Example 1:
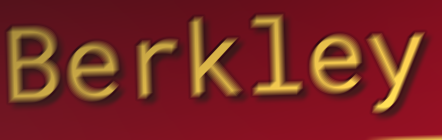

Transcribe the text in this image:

Berkley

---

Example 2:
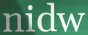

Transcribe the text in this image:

nidw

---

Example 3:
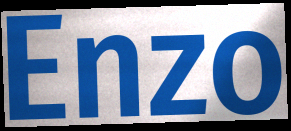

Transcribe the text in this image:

Enzo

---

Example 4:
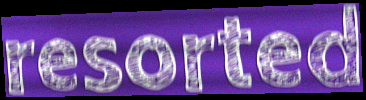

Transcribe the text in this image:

resorted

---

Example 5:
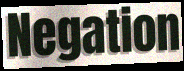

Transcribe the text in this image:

Negation